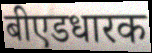
बीएडधारक